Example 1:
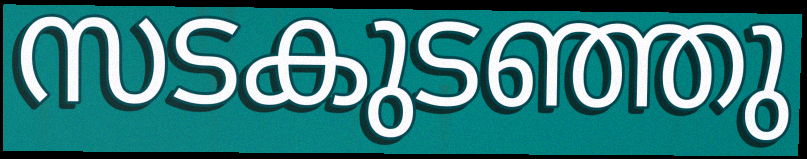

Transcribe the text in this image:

സടകുടഞ്ഞു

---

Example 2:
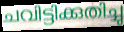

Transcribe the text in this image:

ചവിട്ടിക്കുതിച്ചു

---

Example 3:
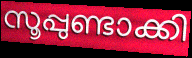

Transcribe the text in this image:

സൂപ്പുണ്ടാക്കി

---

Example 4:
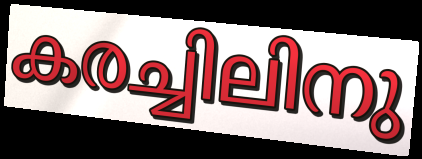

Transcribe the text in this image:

കരച്ചിലിനു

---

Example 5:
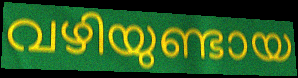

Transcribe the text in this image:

വഴിയുണ്ടായ